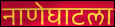
नाणेघाटला